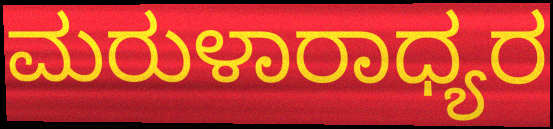
ಮರುಳಾರಾಧ್ಯರ